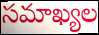
సమాఖ్యల